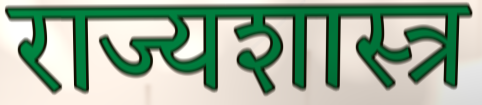
राज्यशास्त्र